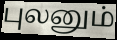
புலனும்